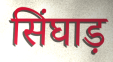
सिंघाड़